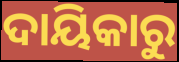
ଦାୟିକାରୁ